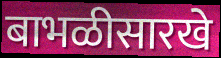
बाभळीसारखे